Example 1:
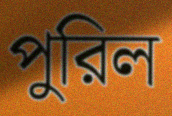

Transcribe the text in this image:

পুরিল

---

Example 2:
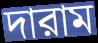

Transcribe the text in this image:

দারাম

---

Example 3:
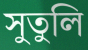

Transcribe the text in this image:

সুতুলি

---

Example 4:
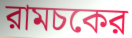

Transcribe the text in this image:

রামচকের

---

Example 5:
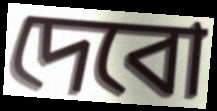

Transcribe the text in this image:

দেবো